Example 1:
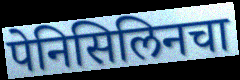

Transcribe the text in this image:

पेनिसिलिनचा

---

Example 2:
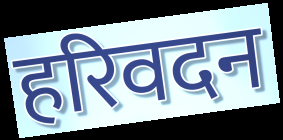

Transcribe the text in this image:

हरिवदन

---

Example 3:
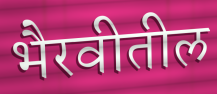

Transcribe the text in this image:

भैरवीतील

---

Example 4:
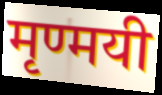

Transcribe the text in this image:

मृण्मयी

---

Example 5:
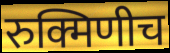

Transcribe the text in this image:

रुक्मिणीच